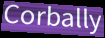
Corbally